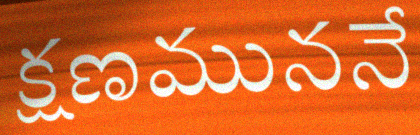
క్షణముననే